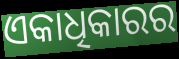
ଏକାଧିକାରର